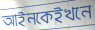
আইনকেইখনে